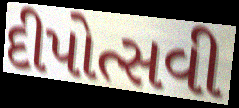
દીપોત્સવી